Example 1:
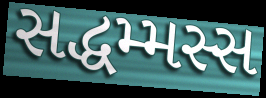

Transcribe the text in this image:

સદ્ધમ્મસ્સ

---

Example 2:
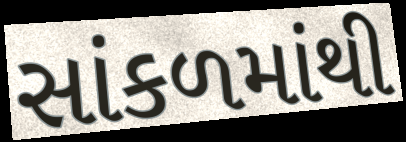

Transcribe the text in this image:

સાંકળમાંથી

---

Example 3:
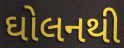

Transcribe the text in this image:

ઘોલનથી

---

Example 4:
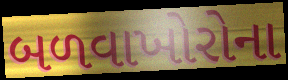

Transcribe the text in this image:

બળવાખોરોના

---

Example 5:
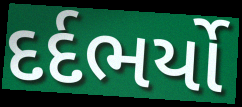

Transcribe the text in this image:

દર્દભર્યો